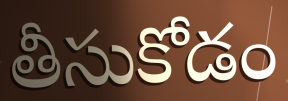
తీసుకోడం